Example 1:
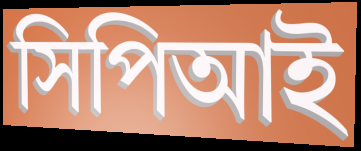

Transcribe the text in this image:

সিপিআই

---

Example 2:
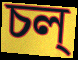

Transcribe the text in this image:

চল্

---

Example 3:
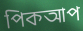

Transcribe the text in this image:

পিকআপ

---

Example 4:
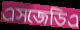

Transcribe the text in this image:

এসজেডিএ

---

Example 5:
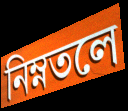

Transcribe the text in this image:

নিম্নতলে